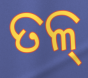
ତଳ୍